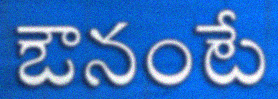
ఔనంటే